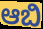
ಆಬಿ